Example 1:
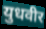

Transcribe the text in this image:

युधवीर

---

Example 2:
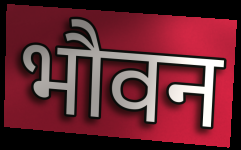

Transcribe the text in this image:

भौवन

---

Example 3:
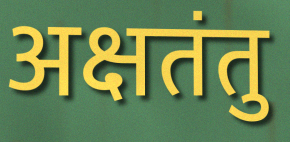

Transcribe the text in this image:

अक्षतंतु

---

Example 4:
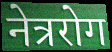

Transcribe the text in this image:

नेत्ररोग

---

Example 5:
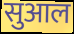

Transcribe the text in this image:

सुआल